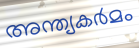
അന്ത്യകർമം